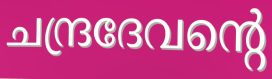
ചന്ദ്രദേവന്റെ